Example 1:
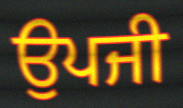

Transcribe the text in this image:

ਉਪਜੀ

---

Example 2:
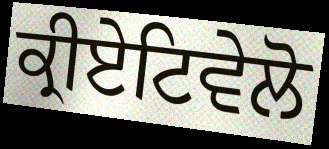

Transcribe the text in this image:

ਕ੍ਰੀਏਟਿਵੇਲੋ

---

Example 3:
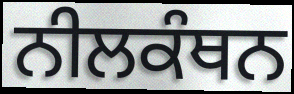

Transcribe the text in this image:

ਨੀਲਕੰਥਨ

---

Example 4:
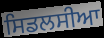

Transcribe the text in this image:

ਸਿਡਲਸੀਆ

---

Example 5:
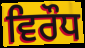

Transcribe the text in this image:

ਵਿਰੌਧ